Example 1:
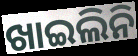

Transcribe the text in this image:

ଖାଇଲିନି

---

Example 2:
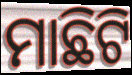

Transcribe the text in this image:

ମାଛିଟି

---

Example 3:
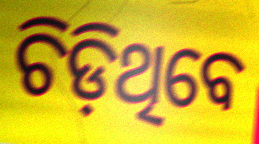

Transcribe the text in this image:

ଚିଡ଼ିଥିବେ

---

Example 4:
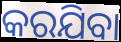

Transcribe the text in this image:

କରଯିବା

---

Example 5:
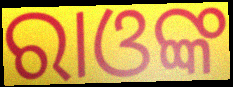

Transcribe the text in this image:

ରାଓଙ୍କ